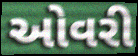
ઓવરી